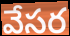
వేసర